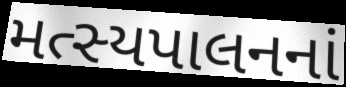
મત્સ્યપાલનનાં